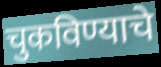
चुकविण्याचे